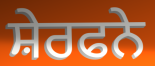
ਸ਼ੇਰਫਨੇ